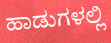
ಹಾಡುಗಳಲ್ಲಿ